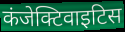
कंजेक्टिवाइटिस